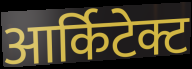
आर्किटेक्ट